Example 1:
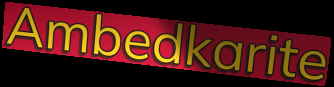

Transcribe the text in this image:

Ambedkarite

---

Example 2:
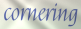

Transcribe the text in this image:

cornering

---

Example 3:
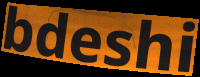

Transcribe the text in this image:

bdeshi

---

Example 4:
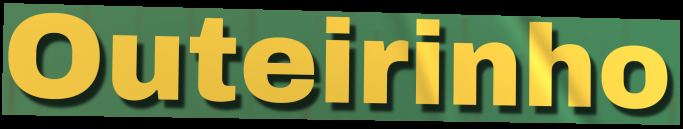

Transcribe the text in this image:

Outeirinho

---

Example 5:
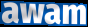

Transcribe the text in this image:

awam